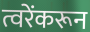
त्वरेंकरून